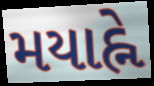
મયાહ્ને